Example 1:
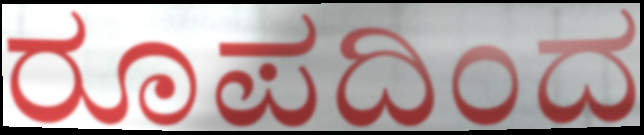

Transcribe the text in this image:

ರೂಪದಿಂದ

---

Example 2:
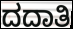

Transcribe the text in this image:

ದದಾತಿ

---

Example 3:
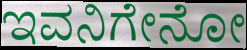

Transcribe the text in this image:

ಇವನಿಗೇನೋ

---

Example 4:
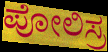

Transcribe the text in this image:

ಪೋಲಿಸ್ರ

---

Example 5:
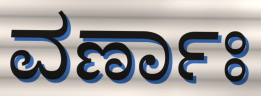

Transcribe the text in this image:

ವರ್ಣಾಃ